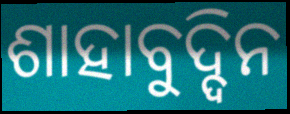
ଶାହାବୁଦ୍ଦିନ